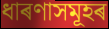
ধাৰণাসমূহৰ